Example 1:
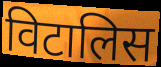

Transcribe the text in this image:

विटालिस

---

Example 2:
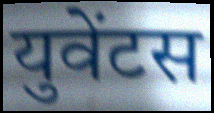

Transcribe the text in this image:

युवेंटस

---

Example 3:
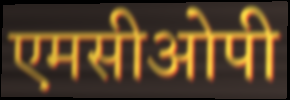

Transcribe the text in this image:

एमसीओपी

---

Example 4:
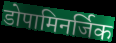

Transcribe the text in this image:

डोपामिनर्जिक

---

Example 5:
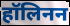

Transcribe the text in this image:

हॉलिनन